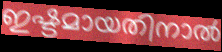
ഇഷ്ടമായതിനാൽ